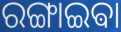
ରଙ୍ଗାଇଵା